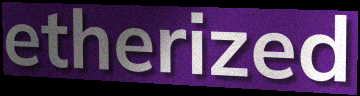
etherized